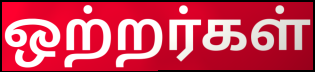
ஒற்றர்கள்